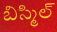
బిస్మిల్